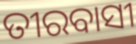
ତୀରବାସୀ